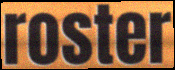
roster